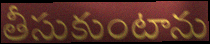
తీసుకుంటాను